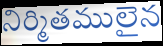
నిర్మితములైన